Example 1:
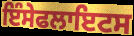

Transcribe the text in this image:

ਇੰਸੇਫਲਾਇਟਸ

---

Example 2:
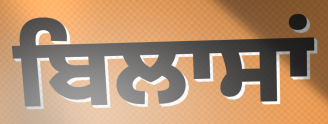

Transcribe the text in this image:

ਬਿਲਾਸਾਂ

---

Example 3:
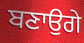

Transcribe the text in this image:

ਬਣਾਉਗੇ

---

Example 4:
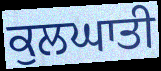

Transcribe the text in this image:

ਕੁਲਘਾਤੀ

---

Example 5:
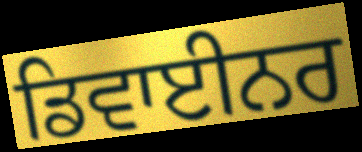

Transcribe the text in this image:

ਡਿਵਾਈਨਰ